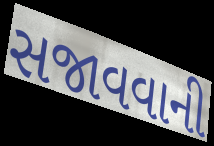
સજાવવાની